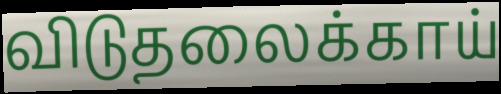
விடுதலைக்காய்